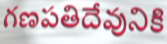
గణపతిదేవునికి